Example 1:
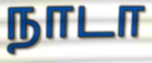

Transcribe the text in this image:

நாடா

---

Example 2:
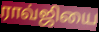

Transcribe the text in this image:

ராவ்ஜியை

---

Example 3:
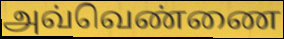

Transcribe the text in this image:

அவ்வெண்ணை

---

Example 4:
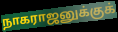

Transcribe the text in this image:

நாகராஜனுக்குக்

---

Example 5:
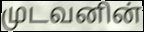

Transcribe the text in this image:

முடவனின்